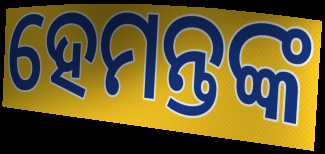
ହେମନ୍ତଙ୍କ